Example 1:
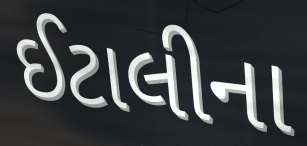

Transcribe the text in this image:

ઈટાલીના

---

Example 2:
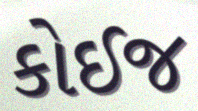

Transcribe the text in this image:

કોઈજ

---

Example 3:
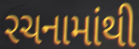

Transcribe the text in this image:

રચનામાંથી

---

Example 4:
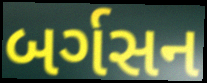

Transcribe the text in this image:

બર્ગસન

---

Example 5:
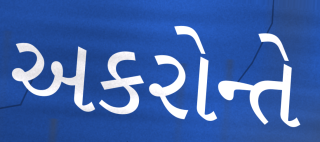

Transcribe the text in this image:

અકરોન્તે